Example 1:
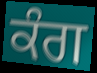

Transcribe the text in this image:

ਕੰਗ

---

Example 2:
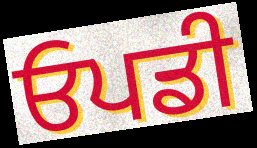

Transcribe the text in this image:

ਓਪਡੀ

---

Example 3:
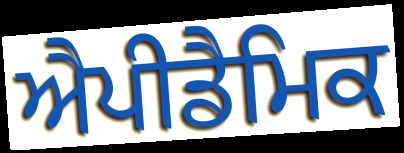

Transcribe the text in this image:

ਐਪੀਡੈਮਿਕ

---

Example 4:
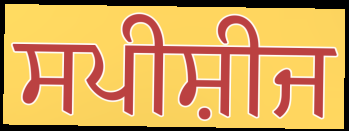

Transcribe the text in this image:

ਸਪੀਸ਼ੀਜ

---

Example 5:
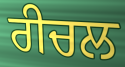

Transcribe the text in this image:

ਰੀਚਲ